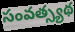
సంవత్స్యథ